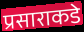
प्रसाराकडे